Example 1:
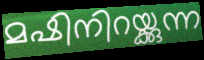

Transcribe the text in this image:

മഷിനിറയ്ക്കുന്ന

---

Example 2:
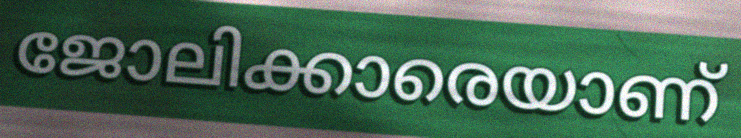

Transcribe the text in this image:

ജോലിക്കാരെയാണ്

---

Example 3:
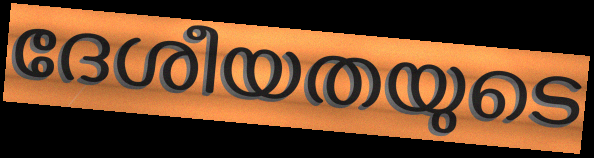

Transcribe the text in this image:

ദേശീയതയുടെ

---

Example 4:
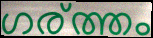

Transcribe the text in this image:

ഗര്ത്തം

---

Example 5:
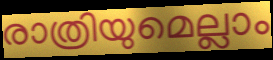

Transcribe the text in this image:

രാത്രിയുമെല്ലാം